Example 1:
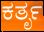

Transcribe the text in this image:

ಕರ್ತೃ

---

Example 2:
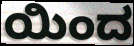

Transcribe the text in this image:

ಯಿಂದ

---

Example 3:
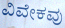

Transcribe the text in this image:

ವಿವೇಕವು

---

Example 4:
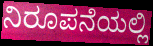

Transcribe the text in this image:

ನಿರೂಪನೆಯಲ್ಲಿ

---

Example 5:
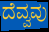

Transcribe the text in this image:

ದೆವ್ವವು